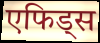
एफिड्स